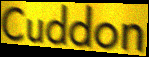
Cuddon